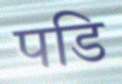
पडि